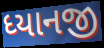
ધ્યાનજી